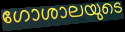
ഗോശാലയുടെ